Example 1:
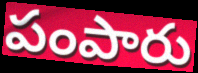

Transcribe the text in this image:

పంపారు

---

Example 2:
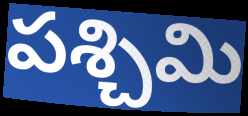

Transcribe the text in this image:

పశ్చిమి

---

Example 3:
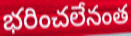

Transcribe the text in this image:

భరించలేనంత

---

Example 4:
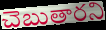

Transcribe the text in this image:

చెబుతారని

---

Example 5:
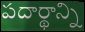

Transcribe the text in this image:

పదార్థాన్ని